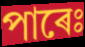
পাৰেঃ